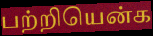
பற்றியென்க